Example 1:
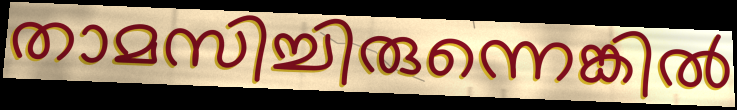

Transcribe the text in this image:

താമസിച്ചിരുന്നെങ്കിൽ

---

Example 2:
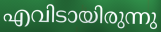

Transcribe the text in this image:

എവിടായിരുന്നു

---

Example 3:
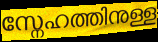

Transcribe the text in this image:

സ്നേഹത്തിനുള്ള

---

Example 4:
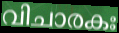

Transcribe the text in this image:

വിചാരകഃ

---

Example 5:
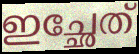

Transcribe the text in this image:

ഇച്ഛേത്